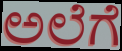
ಅಲೆಗೆ